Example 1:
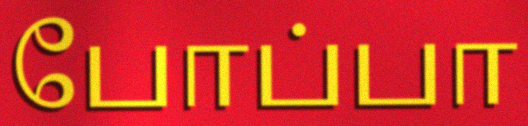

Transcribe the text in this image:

போப்பா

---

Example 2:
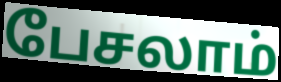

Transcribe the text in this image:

பேசலாம்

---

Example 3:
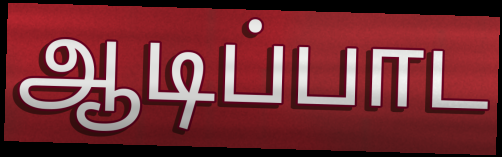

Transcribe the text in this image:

ஆடிப்பாட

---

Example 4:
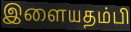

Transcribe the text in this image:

இளையதம்பி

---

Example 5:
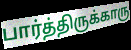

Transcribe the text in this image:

பார்த்திருக்காரு